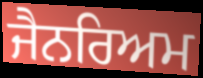
ਜੈਨਰਿਅਮ